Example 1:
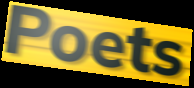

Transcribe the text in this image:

Poets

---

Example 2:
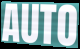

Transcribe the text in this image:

AUTO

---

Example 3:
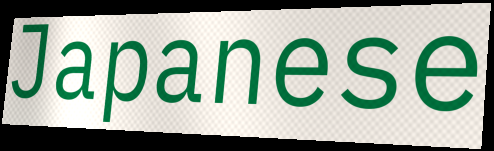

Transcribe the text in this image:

Japanese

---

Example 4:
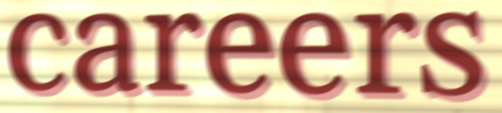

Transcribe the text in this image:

careers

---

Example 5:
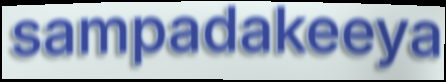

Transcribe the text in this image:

sampadakeeya